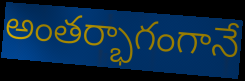
అంతర్భాగంగానే